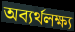
অব্যর্থলক্ষ্য